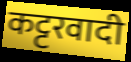
कट्टरवादी